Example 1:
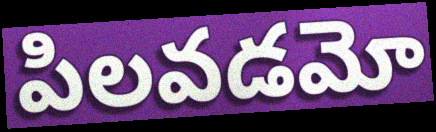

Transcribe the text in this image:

పిలవడమో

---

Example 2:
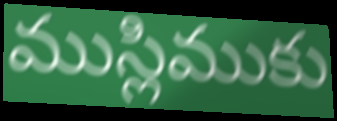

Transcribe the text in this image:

ముస్లిముకు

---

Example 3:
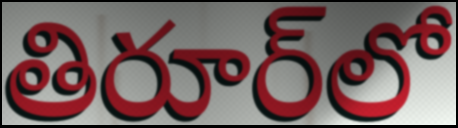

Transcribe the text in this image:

తిరూర్‌లో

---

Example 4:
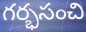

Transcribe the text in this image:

గర్భసంచి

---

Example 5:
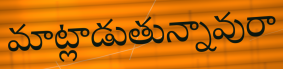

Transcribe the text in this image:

మాట్లాడుతున్నావురా